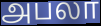
அபலா